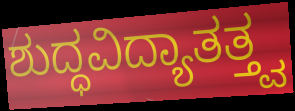
ಶುದ್ಧವಿದ್ಯಾತತ್ತ್ವ